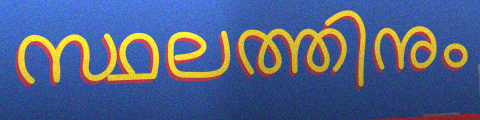
സ്ഥലത്തിനും